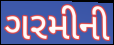
ગરમીની